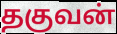
தகுவன்